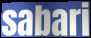
sabari